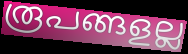
രൂപങ്ങളല്ല